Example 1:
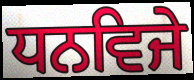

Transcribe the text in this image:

ਧਨਵਿਜੇ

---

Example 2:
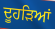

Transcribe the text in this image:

ਦੂਹੜਿਆਂ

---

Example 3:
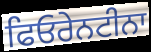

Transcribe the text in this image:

ਫਿਓਰੇਨਟੀਨਾ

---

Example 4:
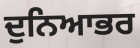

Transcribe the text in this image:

ਦੁਨਿਆਭਰ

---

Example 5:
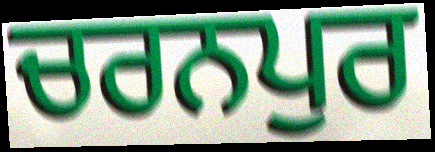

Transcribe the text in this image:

ਚਰਨਪੁਰ